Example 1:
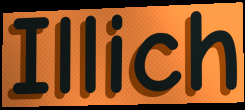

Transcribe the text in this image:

Illich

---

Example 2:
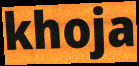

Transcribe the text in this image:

khoja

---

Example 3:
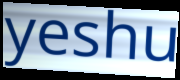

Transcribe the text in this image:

yeshu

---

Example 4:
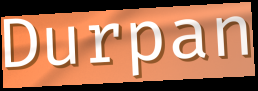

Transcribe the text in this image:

Durpan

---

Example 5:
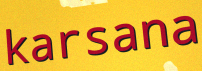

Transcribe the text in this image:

karsana